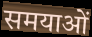
समयाओं